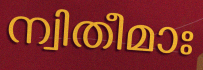
ന്വിതീമാഃ